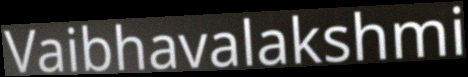
Vaibhavalakshmi